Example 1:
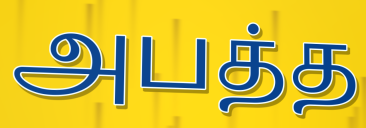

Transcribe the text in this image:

அபத்த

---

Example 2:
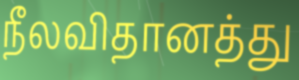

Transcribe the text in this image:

நீலவிதானத்து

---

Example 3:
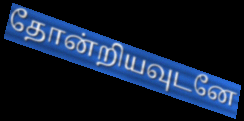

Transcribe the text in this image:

தோன்றியவுடனே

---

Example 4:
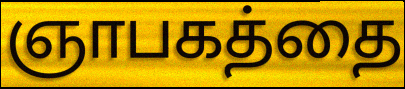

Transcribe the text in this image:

ஞாபகத்தை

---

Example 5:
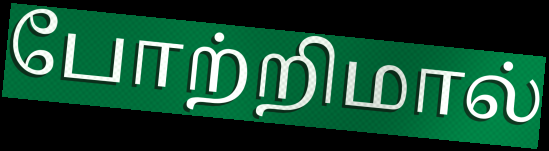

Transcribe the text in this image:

போற்றிமால்